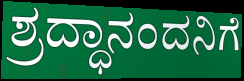
ಶ್ರದ್ಧಾನಂದನಿಗೆ